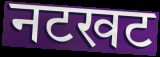
नटखट